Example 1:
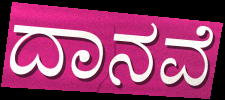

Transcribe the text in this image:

ದಾನವೆ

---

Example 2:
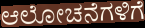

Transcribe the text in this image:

ಆಲೋಚನೆಗಳಿಗೆ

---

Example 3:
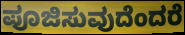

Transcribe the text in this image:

ಪೂಜಿಸುವುದೆಂದರೆ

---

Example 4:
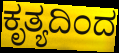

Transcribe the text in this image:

ಕೃತ್ಯದಿಂದ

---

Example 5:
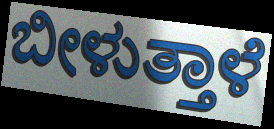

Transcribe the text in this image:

ಬೀಳುತ್ತಾಳೆ